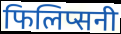
फिलिप्सनी